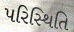
પરિસ્‍થિતિ